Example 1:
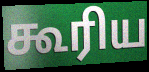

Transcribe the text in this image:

கூரிய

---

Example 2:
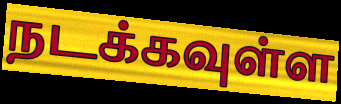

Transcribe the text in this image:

நடக்கவுள்ள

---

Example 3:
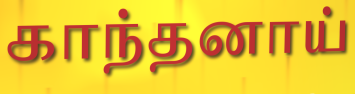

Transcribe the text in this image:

காந்தனாய்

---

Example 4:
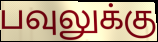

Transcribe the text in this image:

பவுலுக்கு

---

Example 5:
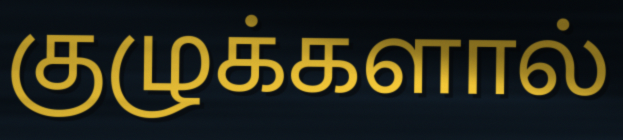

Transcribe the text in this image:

குழுக்களால்